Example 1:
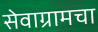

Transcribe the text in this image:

सेवाग्रामचा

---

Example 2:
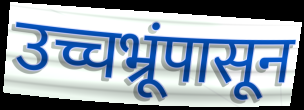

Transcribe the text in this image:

उच्चभ्रूंपासून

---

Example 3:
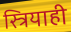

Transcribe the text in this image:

स्त्रियाही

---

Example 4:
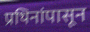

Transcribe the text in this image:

प्रथिनांपासून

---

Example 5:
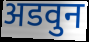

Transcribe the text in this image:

अडवुन